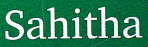
Sahitha